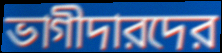
ভাগীদারদের